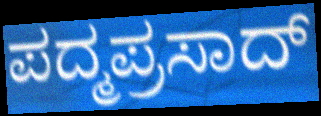
ಪದ್ಮಪ್ರಸಾದ್